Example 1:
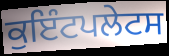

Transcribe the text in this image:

ਕੁਇੰਟਪਲੇਟਸ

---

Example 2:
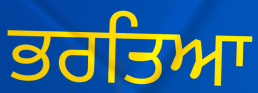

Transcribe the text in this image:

ਭਰਤਿਆ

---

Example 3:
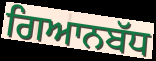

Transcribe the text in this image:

ਗਿਆਨਬੱਧ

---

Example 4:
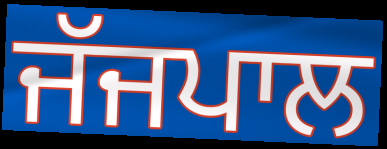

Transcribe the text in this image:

ਜੱਜਪਾਲ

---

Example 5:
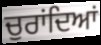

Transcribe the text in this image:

ਚੁਰਾਂਦਿਆਂ